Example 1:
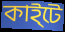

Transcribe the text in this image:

কাই্টে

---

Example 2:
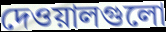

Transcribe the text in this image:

দেওয়ালগুলো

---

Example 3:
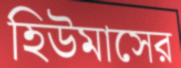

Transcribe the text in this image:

হিউমাসের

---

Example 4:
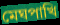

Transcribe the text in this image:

মেঘপাখি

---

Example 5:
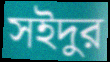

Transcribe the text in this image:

সইদুর